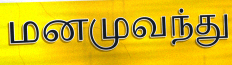
மனமுவந்து